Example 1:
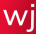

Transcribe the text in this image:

wj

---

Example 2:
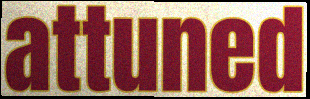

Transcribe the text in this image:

attuned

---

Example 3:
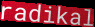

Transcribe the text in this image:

radikal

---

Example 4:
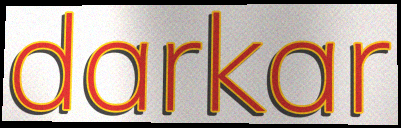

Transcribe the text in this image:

darkar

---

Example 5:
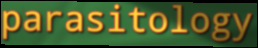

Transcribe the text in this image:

parasitology